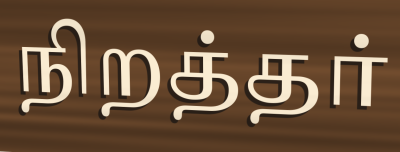
நிறத்தர்